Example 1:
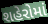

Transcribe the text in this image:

શહેરોમાં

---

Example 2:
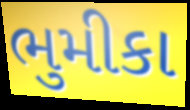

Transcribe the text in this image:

ભુમીકા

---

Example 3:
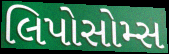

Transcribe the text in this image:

લિપોસોમ્સ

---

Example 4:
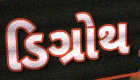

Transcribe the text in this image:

ડિગ્રોથ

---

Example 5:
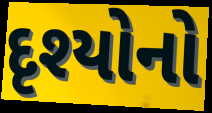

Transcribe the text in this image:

દૃશ્યોનો